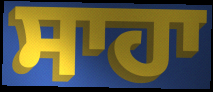
ਸਾਹਾ